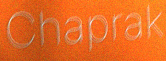
Chaprak